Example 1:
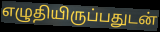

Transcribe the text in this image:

எழுதியிருப்பதுடன்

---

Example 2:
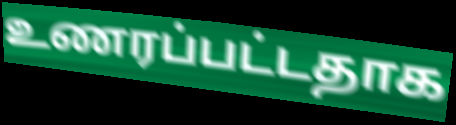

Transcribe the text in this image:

உணரப்பட்டதாக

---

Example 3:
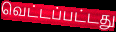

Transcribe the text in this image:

வெட்டப்பட்டது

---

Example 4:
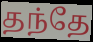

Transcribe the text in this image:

தந்தே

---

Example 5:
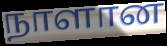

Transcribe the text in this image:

நாளான